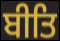
ਬੀਤਿ